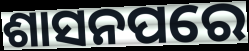
ଶାସନପରେ